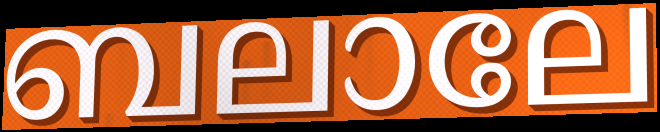
ബലാലേ